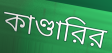
কাণ্ডারির